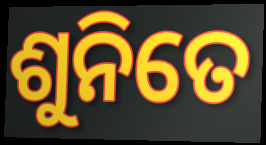
ଶୁନିତେ